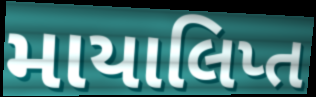
માયાલિપ્ત